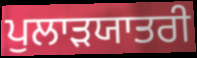
ਪੁਲਾੜਯਾਤਰੀ